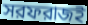
সরফরাজই